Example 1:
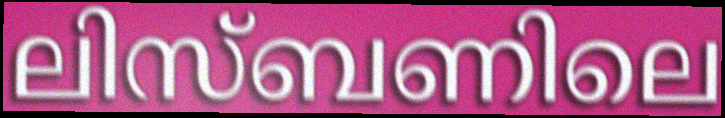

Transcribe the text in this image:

ലിസ്ബണിലെ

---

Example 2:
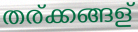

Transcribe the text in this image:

തര്ക്കങ്ങള്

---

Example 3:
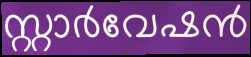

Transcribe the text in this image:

സ്റ്റാർവേഷൻ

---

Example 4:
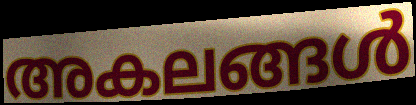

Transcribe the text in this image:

അകലങ്ങൾ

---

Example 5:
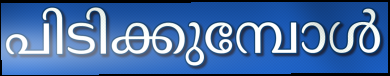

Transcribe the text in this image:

പിടിക്കുമ്പോൾ